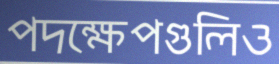
পদক্ষেপগুলিও